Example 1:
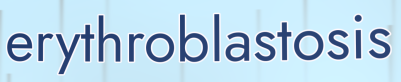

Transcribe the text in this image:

erythroblastosis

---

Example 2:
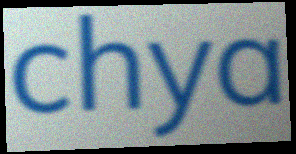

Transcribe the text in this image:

chya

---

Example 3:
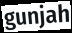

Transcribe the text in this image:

gunjah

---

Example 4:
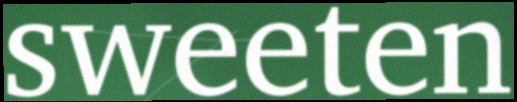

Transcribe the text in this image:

sweeten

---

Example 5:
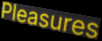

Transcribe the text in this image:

Pleasures